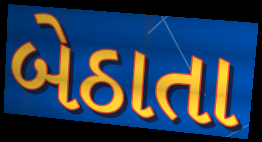
બેઠાતા